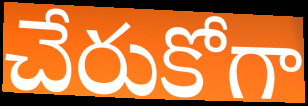
చేరుకోగా